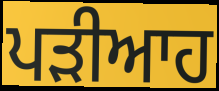
ਪੜੀਆਹ